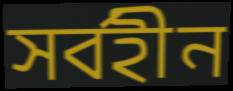
সর্বহীন